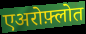
एअरोफ़्लोत